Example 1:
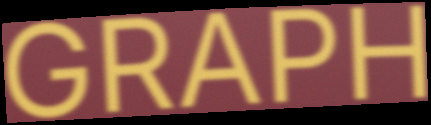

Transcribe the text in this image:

GRAPH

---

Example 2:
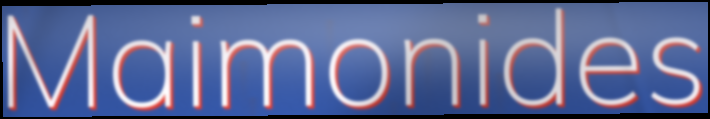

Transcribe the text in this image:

Maimonides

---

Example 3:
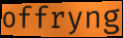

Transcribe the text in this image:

offryng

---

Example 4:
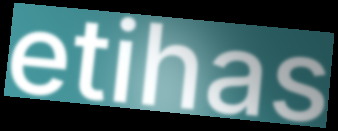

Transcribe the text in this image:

etihas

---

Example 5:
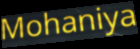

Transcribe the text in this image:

Mohaniya